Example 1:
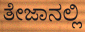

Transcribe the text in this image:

ತೇಜಾನಲ್ಲಿ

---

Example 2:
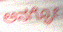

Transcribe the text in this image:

ಅನಗ್ಘೋ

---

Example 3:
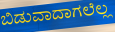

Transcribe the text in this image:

ಬಿಡುವಾದಾಗಲೆಲ್ಲ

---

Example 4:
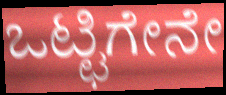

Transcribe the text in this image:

ಒಟ್ಟಿಗೇನೇ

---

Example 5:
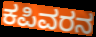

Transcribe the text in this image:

ಕಪಿವರನ